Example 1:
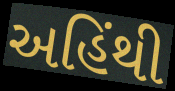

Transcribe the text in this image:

અહિંથી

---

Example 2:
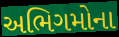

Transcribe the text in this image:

અભિગમોના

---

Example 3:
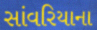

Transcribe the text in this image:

સાંવરિયાના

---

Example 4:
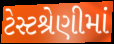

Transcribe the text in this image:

ટેસ્ટશ્રેણીમાં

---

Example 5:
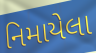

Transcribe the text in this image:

નિમાયેલા